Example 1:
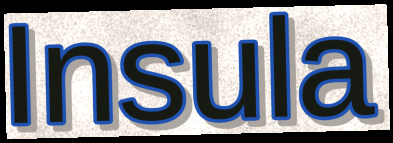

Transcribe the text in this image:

Insula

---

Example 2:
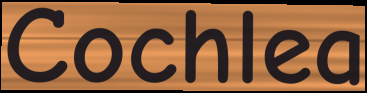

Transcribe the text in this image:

Cochlea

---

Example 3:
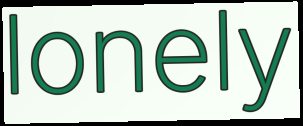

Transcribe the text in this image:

lonely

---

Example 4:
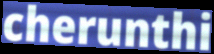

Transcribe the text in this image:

cherunthi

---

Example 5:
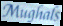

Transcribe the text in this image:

Mughals